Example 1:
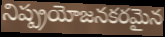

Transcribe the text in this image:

నిష్ప్రయోజనకరమైన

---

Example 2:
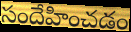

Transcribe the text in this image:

సందేహించడం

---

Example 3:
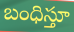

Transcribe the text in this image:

బంధిస్తూ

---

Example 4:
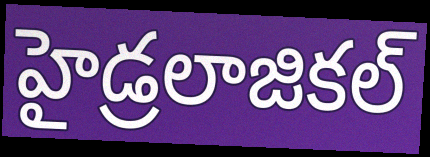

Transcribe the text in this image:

హైడ్రలాజికల్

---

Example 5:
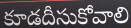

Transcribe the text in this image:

కూడదీసుకోవాలి